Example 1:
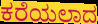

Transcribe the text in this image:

ಕರೆಯಲಾದ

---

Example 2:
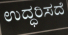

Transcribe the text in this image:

ಉದ್ಧರಿಸದೆ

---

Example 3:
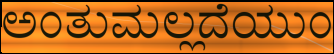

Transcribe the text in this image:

ಅಂತುಮಲ್ಲದೆಯುಂ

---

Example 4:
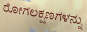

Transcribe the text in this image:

ರೋಗಲಕ್ಷಣಗಳನ್ನು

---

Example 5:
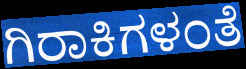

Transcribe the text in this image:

ಗಿರಾಕಿಗಳಂತೆ